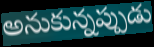
అనుకున్నప్పుడు